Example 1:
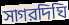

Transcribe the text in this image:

সাগরদিঘি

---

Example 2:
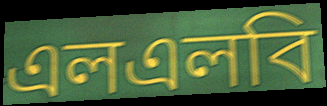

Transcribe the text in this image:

এলএলবি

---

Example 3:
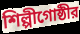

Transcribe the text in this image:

শিল্পীগোষ্ঠীর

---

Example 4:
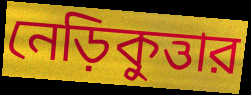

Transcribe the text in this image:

নেড়িকুত্তার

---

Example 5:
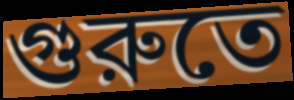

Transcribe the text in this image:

গুরুতে